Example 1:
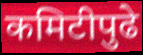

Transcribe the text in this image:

कमिटीपुढे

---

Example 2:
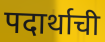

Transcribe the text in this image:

पदार्थाची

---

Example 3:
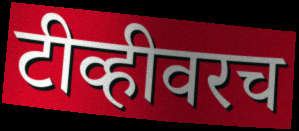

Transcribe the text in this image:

टीव्हीवरच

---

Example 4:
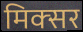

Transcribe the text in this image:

मिक्‍सर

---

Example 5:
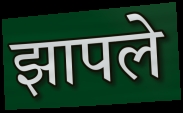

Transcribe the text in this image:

झापले